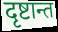
दृष्टान्त